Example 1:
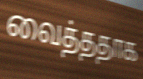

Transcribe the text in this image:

வைத்ததாக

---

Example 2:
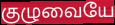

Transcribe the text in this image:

குழுவையே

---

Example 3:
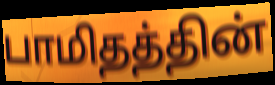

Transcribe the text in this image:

பாமிதத்தின்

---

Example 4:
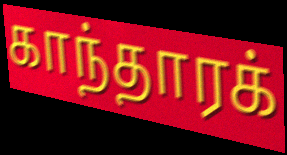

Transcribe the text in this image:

காந்தாரக்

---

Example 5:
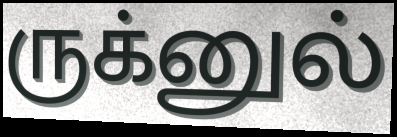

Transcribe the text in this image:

ருக்னுல்